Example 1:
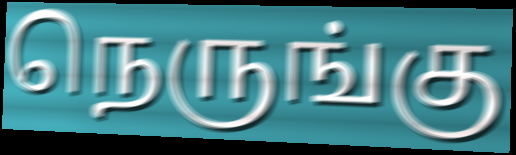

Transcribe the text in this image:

நெருங்கு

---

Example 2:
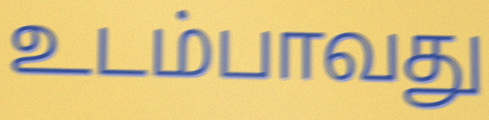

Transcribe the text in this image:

உடம்பாவது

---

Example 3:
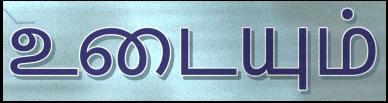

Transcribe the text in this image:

உடையும்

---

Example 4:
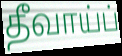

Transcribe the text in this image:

தீவாய்ப்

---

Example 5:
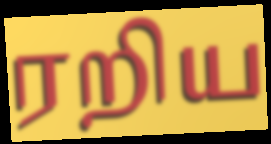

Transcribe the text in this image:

ரறிய